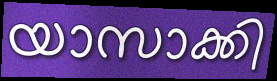
യാസാക്കി